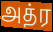
அத்ர